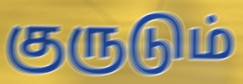
குருடும்